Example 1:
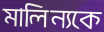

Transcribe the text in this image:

মালিন্যকে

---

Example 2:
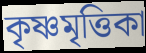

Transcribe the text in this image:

কৃষ্ণমৃত্তিকা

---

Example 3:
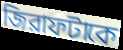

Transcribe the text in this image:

জিরাফটাকে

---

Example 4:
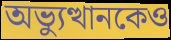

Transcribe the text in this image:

অভ্যুত্থানকেও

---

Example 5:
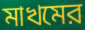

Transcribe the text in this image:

মাখমের